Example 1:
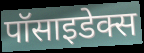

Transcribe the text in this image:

पॉसाइडेक्स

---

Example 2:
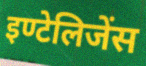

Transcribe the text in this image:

इण्टेलिजेंस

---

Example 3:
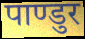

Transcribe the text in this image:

पाण्डुर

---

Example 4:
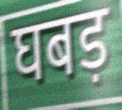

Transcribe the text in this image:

घबड़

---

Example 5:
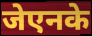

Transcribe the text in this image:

जेएनके